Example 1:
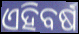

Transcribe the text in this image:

ଏହିବର୍ଷ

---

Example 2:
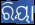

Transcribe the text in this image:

ରିୟା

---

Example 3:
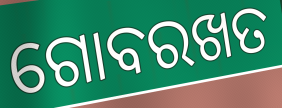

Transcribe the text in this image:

ଗୋବରଖତ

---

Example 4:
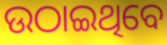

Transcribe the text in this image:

ଉଠାଇଥିବେ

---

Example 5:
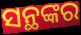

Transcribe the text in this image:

ସନ୍ଥଙ୍କର